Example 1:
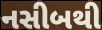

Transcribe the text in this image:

નસીબથી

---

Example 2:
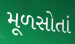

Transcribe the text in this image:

મૂળસોતાં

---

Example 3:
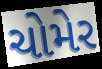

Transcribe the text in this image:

ચોમેર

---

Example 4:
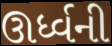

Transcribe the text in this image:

ઊર્ધ્વની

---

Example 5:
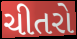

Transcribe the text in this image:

ચીતરો